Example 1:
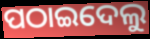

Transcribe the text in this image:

ପଠାଇଦେଲୁ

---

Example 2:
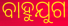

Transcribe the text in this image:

ବାହୁଯୁଗ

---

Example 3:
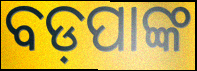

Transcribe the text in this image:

ବଡ଼ପାଙ୍କ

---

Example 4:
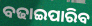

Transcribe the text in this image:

ବଢାଇପାରିବ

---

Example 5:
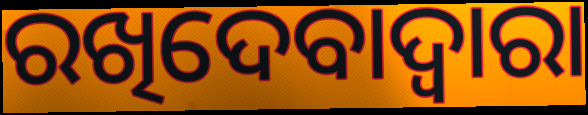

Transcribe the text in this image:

ରଖିଦେବାଦ୍ୱାରା